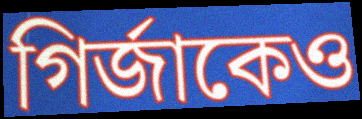
গির্জাকেও